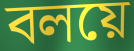
বলয়ে